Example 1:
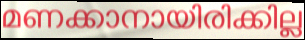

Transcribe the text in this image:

മണക്കാനായിരിക്കില്ല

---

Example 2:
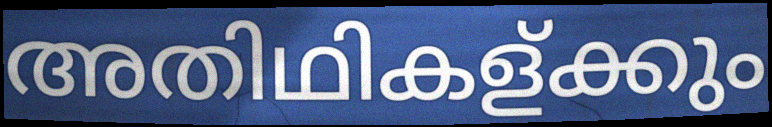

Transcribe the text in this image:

അതിഥികള്ക്കും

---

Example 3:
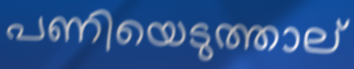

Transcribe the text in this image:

പണിയെടുത്താല്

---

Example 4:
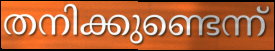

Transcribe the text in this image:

തനിക്കുണ്ടെന്ന്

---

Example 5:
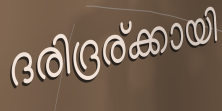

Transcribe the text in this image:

ദരിദ്രര്ക്കായി